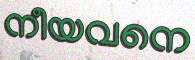
നീയവനെ